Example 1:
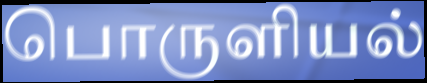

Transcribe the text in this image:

பொருளியல்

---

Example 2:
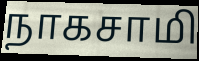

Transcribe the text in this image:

நாகசாமி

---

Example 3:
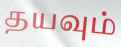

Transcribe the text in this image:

தயவும்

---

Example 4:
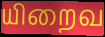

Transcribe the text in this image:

யிறைவ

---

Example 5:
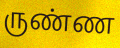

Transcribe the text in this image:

ருண்ண